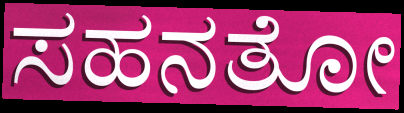
ಸಹನತೋ